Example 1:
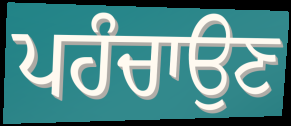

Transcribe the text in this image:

ਪਹੰਚਾਉਣ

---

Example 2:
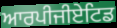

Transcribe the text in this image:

ਆਰਪੀਜੀਏਟਿਡ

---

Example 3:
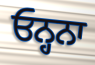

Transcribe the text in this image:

ਓਨ੍ਹਨਾ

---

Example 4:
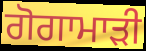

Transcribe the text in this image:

ਗੋਗਾਮਾੜੀ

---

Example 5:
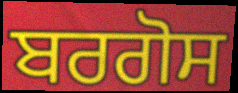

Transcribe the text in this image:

ਬਰਗੋਸ